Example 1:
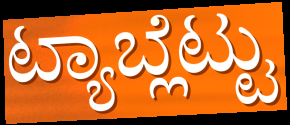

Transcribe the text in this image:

ಟ್ಯಾಬ್ಲೆಟ್ಟು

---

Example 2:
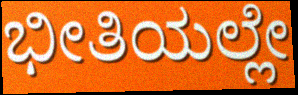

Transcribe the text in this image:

ಭೀತಿಯಲ್ಲೇ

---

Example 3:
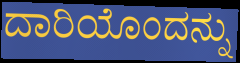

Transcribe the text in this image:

ದಾರಿಯೊಂದನ್ನು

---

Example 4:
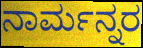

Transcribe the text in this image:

ನಾರ್ಮನ್ನರ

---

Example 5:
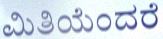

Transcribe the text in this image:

ಮಿತಿಯೆಂದರೆ